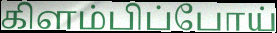
கிளம்பிப்போய்